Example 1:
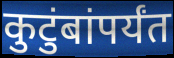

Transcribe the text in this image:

कुटुंबांपर्यंत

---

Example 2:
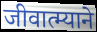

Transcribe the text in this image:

जीवात्म्याने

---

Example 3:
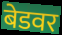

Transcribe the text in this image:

बेडवर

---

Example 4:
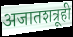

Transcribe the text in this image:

अजातशत्रूही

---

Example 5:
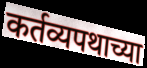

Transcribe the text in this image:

कर्तव्यपथाच्या